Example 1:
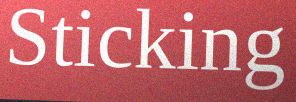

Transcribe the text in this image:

Sticking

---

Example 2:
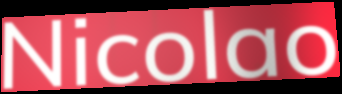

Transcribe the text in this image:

Nicolao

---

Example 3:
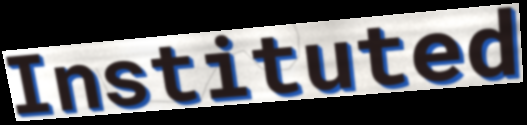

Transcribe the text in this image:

Instituted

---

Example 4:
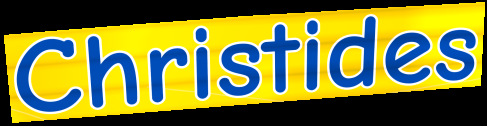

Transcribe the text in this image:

Christides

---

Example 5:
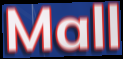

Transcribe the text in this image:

Mall